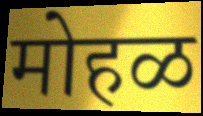
मोहळ